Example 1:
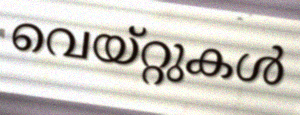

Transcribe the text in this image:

വെയ്റ്റുകൾ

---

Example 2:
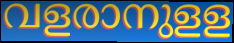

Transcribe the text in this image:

വളരാനുളള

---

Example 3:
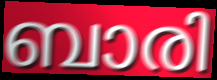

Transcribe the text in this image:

ബാരി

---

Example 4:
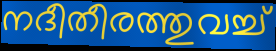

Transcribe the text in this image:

നദീതീരത്തുവച്ച്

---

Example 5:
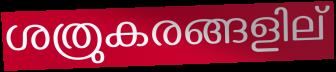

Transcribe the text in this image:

ശത്രുകരങ്ങളില്